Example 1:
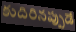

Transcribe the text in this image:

కుదిరినప్పుడే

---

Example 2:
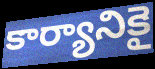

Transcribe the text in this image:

కార్యానికై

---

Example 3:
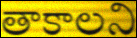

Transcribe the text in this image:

తాకాలని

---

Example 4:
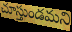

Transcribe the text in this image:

చూస్తుండమని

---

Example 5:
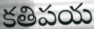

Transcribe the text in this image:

కతిపయ